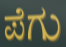
ಪೆಗು